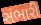
સંભારી